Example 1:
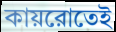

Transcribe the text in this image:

কায়রোতেই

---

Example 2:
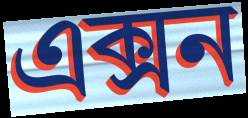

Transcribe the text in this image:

এক্সন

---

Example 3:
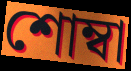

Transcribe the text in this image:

শোম্বা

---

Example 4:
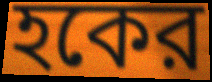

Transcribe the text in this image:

হকের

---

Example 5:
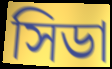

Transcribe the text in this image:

সিডা